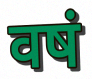
वषं